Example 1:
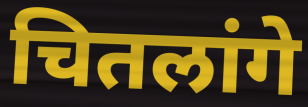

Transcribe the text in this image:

चितलांगे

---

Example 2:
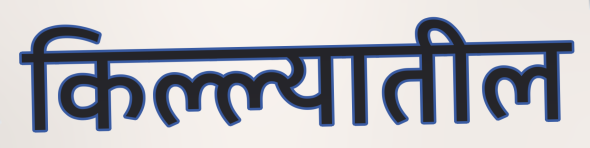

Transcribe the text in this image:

किल्ल्यातील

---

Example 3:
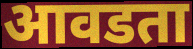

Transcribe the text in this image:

आवडता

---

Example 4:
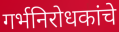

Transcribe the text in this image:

गर्भनिरोधकांचे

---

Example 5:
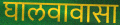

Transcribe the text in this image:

घालवावासा